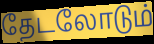
தேடலோடும்